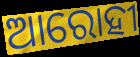
ଆରୋହୀ